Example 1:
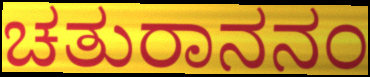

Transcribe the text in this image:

ಚತುರಾನನಂ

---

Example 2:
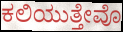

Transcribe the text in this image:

ಕಲಿಯುತ್ತೇವೊ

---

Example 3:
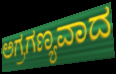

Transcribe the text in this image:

ಅಗ್ರಗಣ್ಯವಾದ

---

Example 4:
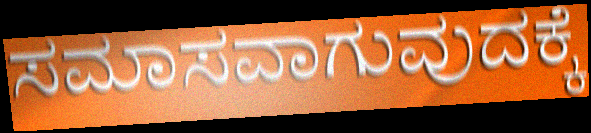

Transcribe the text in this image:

ಸಮಾಸವಾಗುವುದಕ್ಕೆ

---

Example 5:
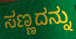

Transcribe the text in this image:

ಸಣ್ಣದನ್ನು